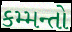
કમ્મન્તો